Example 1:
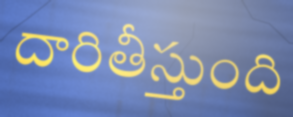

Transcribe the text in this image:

దారితీస్తుంది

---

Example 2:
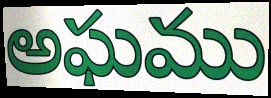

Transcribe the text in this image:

అఘము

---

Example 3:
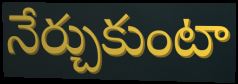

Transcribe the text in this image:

నేర్చుకుంటా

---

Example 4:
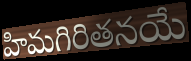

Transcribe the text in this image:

హిమగిరితనయే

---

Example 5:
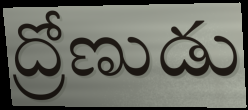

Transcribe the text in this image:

ద్రోణుడు